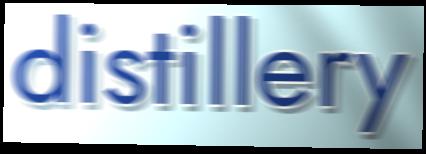
distillery